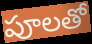
పూలతో